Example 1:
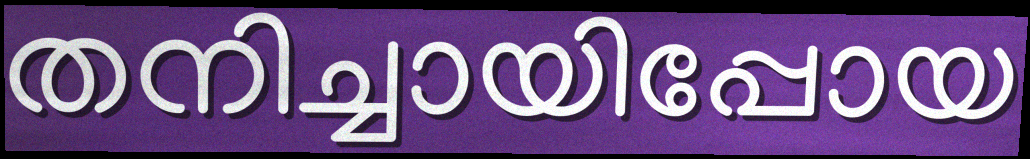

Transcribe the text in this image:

തനിച്ചായിപ്പോയ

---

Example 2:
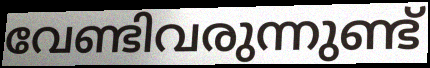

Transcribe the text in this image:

വേണ്ടിവരുന്നുണ്ട്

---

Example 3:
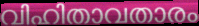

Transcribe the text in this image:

വിഹിതാവതാരം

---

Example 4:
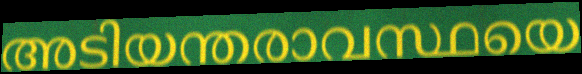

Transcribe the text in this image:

അടിയന്തരാവസ്ഥയെ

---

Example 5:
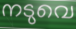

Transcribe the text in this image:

നടുവെ